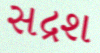
સદ્રશ